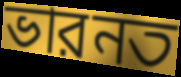
ভারনত